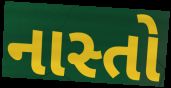
નાસ્તો